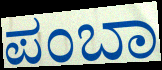
ಪಂಬಾ